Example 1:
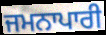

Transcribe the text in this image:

ਜਮਨਾਪਾਰੀ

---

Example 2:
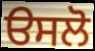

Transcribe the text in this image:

ੳਸਲੋ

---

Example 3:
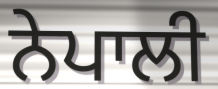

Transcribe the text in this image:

ਨੇਪਾਲੀ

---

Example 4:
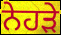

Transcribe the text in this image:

ਨੇਹੜੇ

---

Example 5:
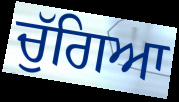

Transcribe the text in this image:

ਚੁੱਗਿਆ